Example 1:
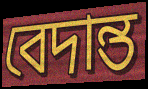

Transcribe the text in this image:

বেদান্ত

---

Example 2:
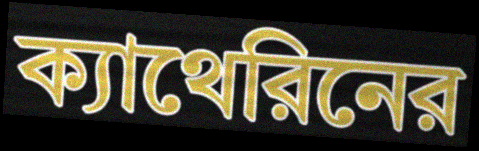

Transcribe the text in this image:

ক্যাথেরিনের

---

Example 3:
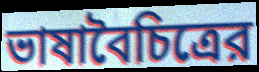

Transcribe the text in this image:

ভাষাবৈচিত্রের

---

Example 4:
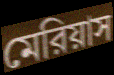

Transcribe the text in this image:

মেরিয়াস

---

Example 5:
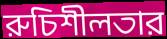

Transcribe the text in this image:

রুচিশীলতার